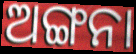
ଅଙ୍ଗନା